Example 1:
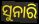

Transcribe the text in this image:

ସୁନାରି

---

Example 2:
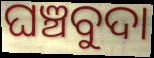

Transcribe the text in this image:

ଘଞ୍ଚବୁଦା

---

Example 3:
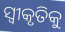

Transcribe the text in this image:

ସ୍ୱୀକୃତିକୁ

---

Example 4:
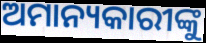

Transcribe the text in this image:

ଅମାନ୍ୟକାରୀଙ୍କୁ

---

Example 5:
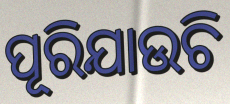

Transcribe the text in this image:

ପୂରିଯାଉଚି